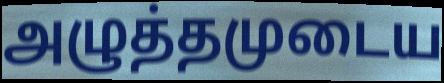
அழுத்தமுடைய